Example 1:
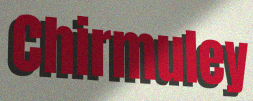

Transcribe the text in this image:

Chirmuley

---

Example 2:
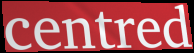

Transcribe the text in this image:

centred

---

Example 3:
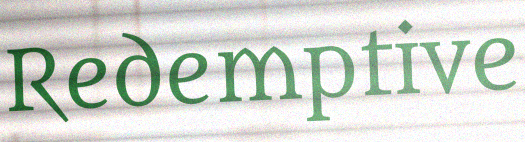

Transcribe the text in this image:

Redemptive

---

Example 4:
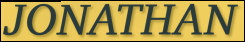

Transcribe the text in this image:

JONATHAN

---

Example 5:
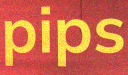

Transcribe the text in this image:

pips